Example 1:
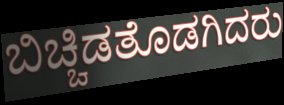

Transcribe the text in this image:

ಬಿಚ್ಚಿಡತೊಡಗಿದರು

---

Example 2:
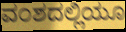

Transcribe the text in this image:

ವಂಶದಲ್ಲಿಯೂ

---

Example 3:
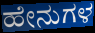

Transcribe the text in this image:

ಹೇನುಗಳ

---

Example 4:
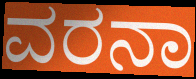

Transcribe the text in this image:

ವರನಾ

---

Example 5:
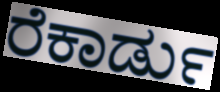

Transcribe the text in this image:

ರೆಕಾರ್ಡು